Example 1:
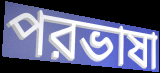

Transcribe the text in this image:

পরভাষা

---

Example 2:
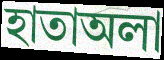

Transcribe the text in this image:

হাতাঅলা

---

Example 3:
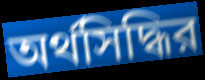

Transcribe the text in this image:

অর্থসিদ্ধির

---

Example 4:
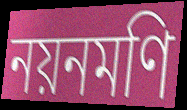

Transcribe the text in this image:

নয়নমণি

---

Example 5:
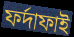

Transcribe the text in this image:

ফর্দাফাই